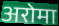
अरोमा